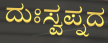
ದುಃಸ್ವಪ್ನದ